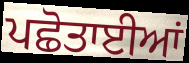
ਪਛੋਤਾਈਆਂ